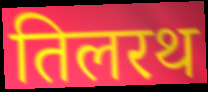
तिलरथ